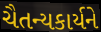
ચૈતન્યકાર્યને